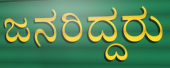
ಜನರಿದ್ದರು